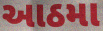
આઠમા